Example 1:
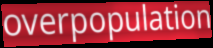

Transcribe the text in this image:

overpopulation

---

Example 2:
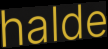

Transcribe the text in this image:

halde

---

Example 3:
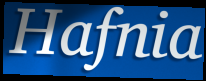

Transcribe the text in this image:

Hafnia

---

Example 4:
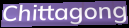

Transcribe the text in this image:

Chittagong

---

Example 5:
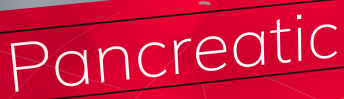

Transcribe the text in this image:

Pancreatic